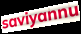
saviyannu